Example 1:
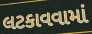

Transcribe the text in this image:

લટકાવવામાં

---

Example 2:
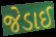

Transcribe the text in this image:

જેડાઈ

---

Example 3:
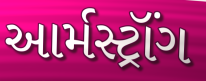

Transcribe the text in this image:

આર્મસ્ટ્રૉંગ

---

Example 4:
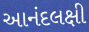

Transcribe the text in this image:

આનંદલક્ષી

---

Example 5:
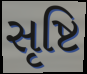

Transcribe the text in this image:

સૃષ્ટિ